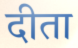
दीता